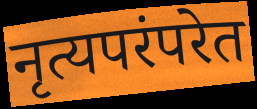
नृत्यपरंपरेत